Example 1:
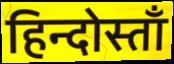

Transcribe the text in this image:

हिन्दोस्ताँ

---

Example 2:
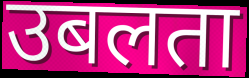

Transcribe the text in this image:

उबलता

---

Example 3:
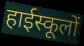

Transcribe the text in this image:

हाईस्कूलों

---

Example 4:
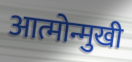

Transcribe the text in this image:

आत्मोन्मुखी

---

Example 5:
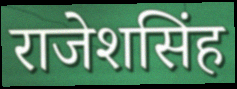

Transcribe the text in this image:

राजेशसिंह